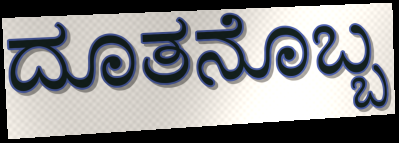
ದೂತನೊಬ್ಬ